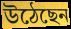
উঠেছেন